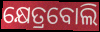
କ୍ଷେତ୍ରବୋଲି